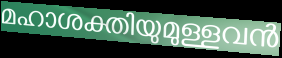
മഹാശക്തിയുമുള്ളവൻ